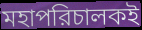
মহাপরিচালকই